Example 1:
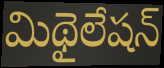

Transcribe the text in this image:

మిథైలేషన్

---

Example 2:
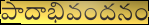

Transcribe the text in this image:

పాదాభివందనం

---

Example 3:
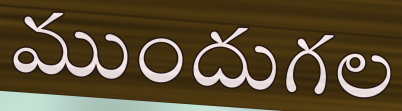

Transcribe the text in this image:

ముందుగల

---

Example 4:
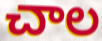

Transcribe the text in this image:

చాల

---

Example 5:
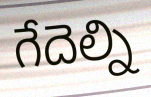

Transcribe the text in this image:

గేదెల్ని